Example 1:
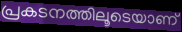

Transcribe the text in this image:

പ്രകടനത്തിലൂടെയാണ്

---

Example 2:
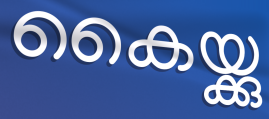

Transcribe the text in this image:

കൈയ്ക്കു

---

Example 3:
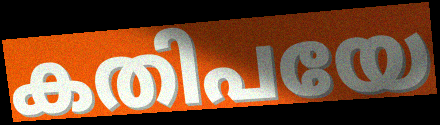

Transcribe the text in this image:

കതിപയേ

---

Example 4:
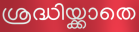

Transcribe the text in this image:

ശ്രദ്ധിയ്ക്കാതെ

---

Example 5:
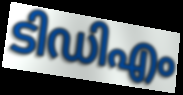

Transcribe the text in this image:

ടിഡിഎം